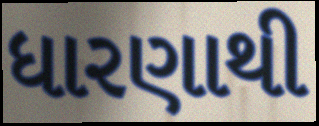
ધારણાથી